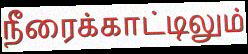
நீரைக்காட்டிலும்